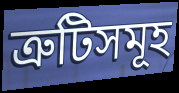
ত্ৰুটিসমূহ